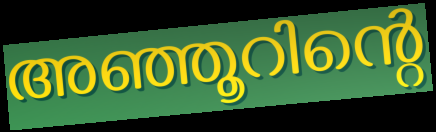
അഞ്ഞൂറിന്റെ